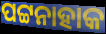
ପଟ୍ଟନାହାକ